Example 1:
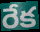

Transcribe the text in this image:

రేక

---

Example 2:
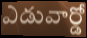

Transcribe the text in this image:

ఎడువార్డో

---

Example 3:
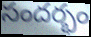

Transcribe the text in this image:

సందర్భం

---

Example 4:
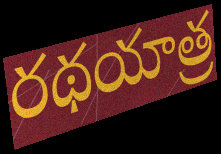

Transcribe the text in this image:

రథయాత్ర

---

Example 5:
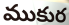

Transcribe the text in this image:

ముకుర